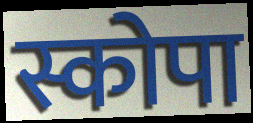
स्कोपा